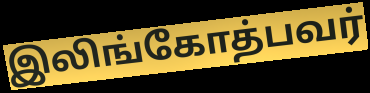
இலிங்கோத்பவர்